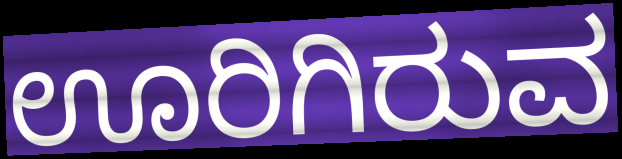
ಊರಿಗಿರುವ